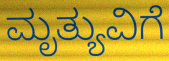
ಮೃತ್ಯುವಿಗೆ